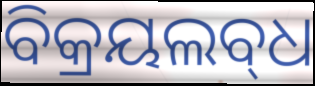
ବିକ୍ରୟଲବ୍‌ଧ